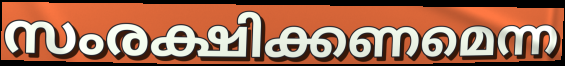
സംരക്ഷിക്കണമെന്ന